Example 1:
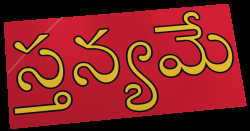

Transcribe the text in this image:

స్తన్యమే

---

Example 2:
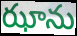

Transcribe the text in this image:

ఝాను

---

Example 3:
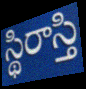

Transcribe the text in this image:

స్థిరాస్తి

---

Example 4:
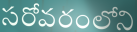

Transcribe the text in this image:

సరోవరంలోని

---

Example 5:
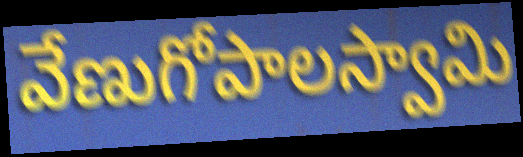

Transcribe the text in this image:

వేణుగోపాలస్వామి